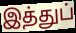
இத்துப்